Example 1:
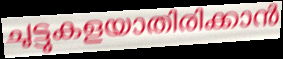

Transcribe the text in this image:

ചുട്ടുകളയാതിരിക്കാൻ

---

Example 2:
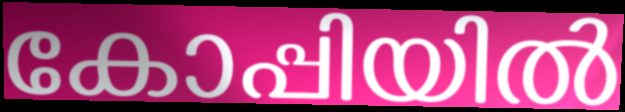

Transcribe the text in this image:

കോപ്പിയിൽ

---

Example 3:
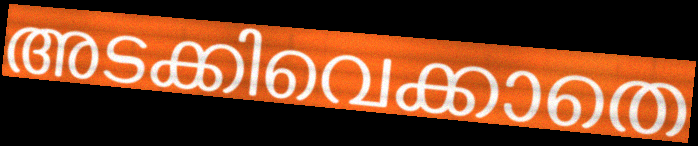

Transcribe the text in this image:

അടക്കിവെക്കാതെ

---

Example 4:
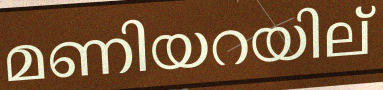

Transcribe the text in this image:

മണിയറയില്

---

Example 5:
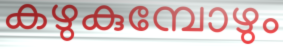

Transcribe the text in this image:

കഴുകുമ്പോഴും